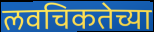
लवचिकतेच्या